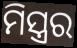
ମିସ୍ତ୍ରର